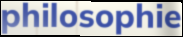
philosophie